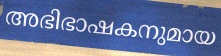
അഭിഭാഷകനുമായ